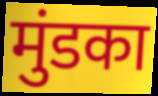
मुंडका